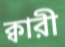
ক্বারী